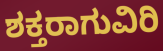
ಶಕ್ತರಾಗುವಿರಿ